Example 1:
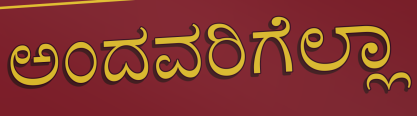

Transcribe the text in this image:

ಅಂದವರಿಗೆಲ್ಲಾ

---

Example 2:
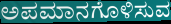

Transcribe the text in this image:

ಅಪಮಾನಗೊಳಿಸುವ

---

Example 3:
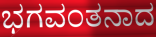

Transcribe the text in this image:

ಭಗವಂತನಾದ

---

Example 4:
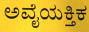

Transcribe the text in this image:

ಅವೈಯಕ್ತಿಕ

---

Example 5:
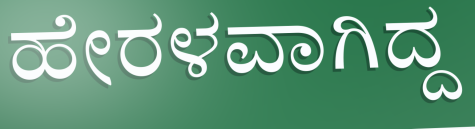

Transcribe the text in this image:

ಹೇರಳವಾಗಿದ್ದ